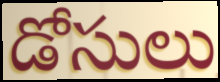
డోసులు